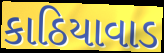
કાઠિયાવાડ